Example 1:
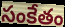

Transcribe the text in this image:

సంకేతం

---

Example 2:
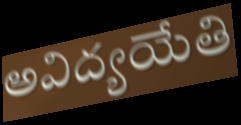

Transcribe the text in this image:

అవిద్యయేతి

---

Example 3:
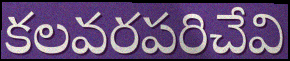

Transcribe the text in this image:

కలవరపరిచేవి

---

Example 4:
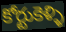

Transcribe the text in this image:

కోర్టుకెళ్ళి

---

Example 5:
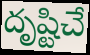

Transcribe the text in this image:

దృష్టిచే